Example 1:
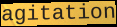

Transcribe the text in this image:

agitation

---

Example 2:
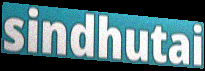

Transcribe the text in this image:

sindhutai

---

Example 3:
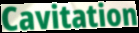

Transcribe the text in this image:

Cavitation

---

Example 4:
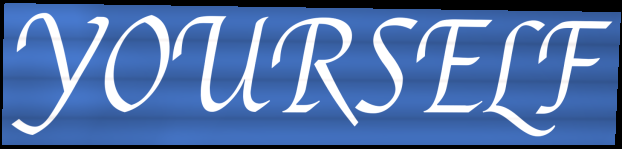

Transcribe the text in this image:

YOURSELF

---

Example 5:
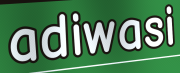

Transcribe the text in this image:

adiwasi